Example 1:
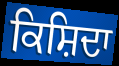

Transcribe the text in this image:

ਕਿਸ਼ਿਦਾ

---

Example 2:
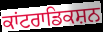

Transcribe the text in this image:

ਕਾਂਟਰਾਡਿਕਸ਼ਨ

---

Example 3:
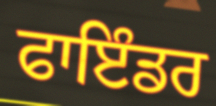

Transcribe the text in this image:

ਫਾਇੰਡਰ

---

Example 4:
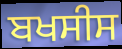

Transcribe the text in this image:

ਬਖਸੀਸ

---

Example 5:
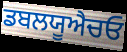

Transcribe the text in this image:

ਡਬਲਯੂਐਚਓ